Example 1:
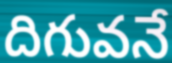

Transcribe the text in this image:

దిగువనే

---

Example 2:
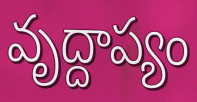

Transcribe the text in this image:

వృద్దాప్యం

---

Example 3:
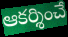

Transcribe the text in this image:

ఆకర్శించే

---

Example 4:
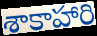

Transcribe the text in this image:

శాకాహారి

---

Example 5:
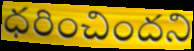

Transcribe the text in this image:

ధరించిందని